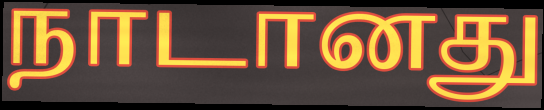
நாடானது